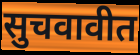
सुचवावीत